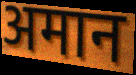
अमान